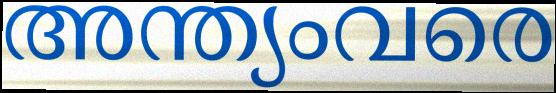
അന്ത്യംവരെ